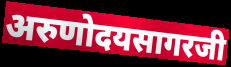
अरुणोदयसागरजी